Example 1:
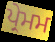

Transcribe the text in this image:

ਪ੍ਰੇਮਮ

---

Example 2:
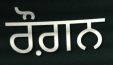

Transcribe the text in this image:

ਰੌਗ਼ਨ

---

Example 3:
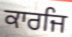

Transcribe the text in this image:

ਕਾਰਜਿ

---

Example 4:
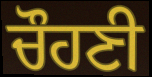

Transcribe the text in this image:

ਚੌਹਣੀ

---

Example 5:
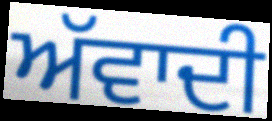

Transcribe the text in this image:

ਅੱਵਾਦੀ